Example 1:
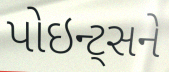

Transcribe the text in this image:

પોઇન્ટ્સને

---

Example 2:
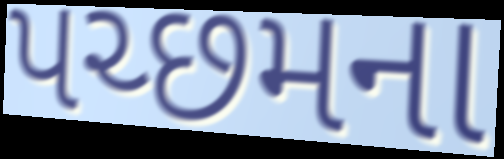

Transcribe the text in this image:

પચ્છમના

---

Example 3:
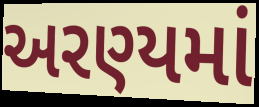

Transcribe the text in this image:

અરણ્યમાં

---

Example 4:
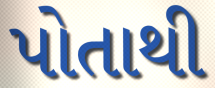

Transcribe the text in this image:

પોતાથી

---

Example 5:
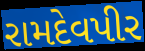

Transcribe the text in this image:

રામદેવપીર